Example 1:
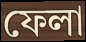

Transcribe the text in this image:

ফেলা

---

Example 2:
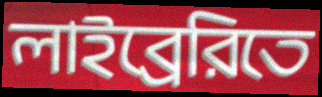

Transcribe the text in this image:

লাইব্রেরিতে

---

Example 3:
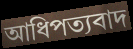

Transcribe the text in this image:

আধিপত্যবাদ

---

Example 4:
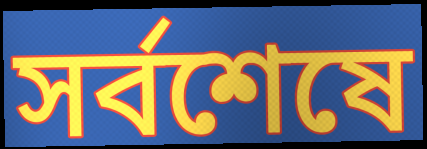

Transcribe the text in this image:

সর্বশেষে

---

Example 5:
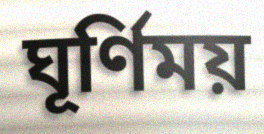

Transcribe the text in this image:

ঘূর্ণিময়